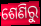
ଶେଣିରୁ